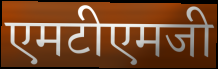
एमटीएमजी